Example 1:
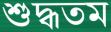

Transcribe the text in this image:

শুদ্ধতম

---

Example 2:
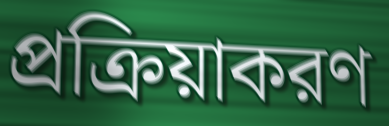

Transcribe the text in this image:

প্রক্রিয়াকরণ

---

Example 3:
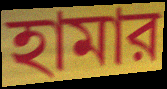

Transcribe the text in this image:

হামার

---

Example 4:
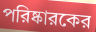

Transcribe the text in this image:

পরিষ্কারকের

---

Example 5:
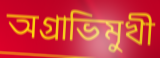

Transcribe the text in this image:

অগ্রাভিমুখী